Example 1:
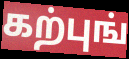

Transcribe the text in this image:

கற்புங்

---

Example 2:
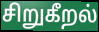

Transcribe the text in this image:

சிறுகீறல்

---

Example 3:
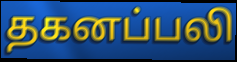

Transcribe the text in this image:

தகனப்பலி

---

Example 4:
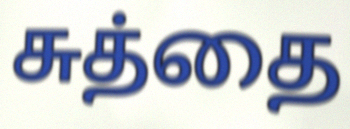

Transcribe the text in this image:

சுத்தை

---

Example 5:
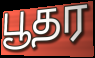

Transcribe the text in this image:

பூதர